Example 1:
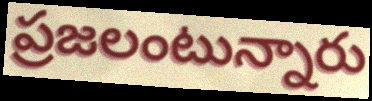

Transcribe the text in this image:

ప్రజలంటున్నారు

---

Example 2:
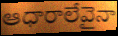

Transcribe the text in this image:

ఆధారాలేవైనా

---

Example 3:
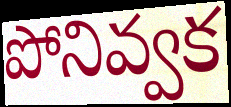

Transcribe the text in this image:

పోనివ్వక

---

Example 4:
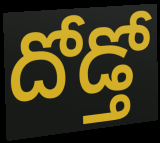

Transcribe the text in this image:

దోడ్తో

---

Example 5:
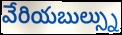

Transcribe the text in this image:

వేరియబుల్స్ను